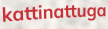
kattinattuga